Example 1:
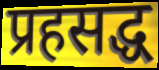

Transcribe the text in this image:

प्रहसद्ध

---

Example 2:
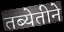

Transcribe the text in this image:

तब्येतीने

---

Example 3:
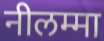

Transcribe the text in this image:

नीलम्मा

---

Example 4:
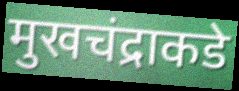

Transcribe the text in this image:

मुखचंद्राकडे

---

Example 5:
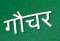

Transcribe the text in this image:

गौचर